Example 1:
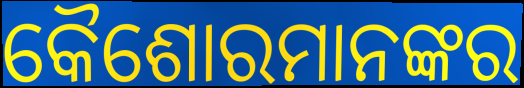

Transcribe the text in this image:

କୈଶୋରମାନଙ୍କର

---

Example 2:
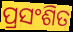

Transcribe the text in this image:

ପ୍ରସଂଶିତ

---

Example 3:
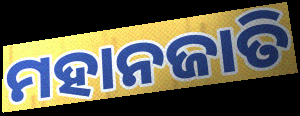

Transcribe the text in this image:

ମହାନଜାତି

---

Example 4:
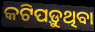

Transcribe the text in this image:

କଟିପଡ଼ୁଥିବା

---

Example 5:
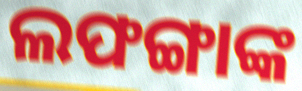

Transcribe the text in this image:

ଲଫଙ୍ଗାଙ୍କ